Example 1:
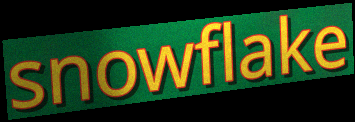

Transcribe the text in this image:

snowflake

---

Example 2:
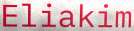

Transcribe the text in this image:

Eliakim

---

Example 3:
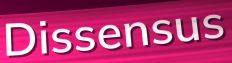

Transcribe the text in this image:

Dissensus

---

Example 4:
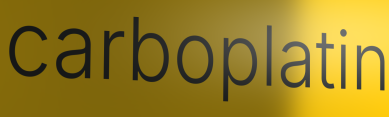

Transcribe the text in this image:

carboplatin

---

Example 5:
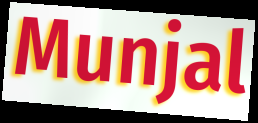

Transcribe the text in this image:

Munjal